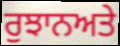
ਰੁਝਾਨਅਤੇ